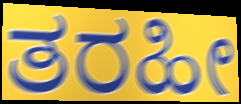
ತರಹೀ